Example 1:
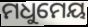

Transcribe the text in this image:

ମଧୁମେୟ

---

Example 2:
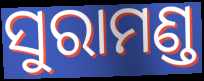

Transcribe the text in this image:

ସୁରାମଣ୍ଡ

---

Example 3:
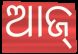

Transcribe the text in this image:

ଆଜ୍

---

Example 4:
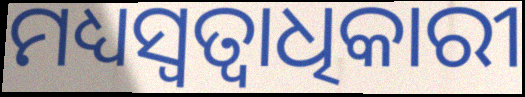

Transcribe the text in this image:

ମଧ୍ୟସ୍ୱତ୍ୱାଧିକାରୀ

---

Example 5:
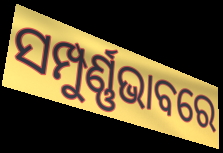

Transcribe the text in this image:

ସମ୍ପୁର୍ଣ୍ଣଭାବରେ